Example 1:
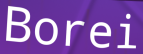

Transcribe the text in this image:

Borei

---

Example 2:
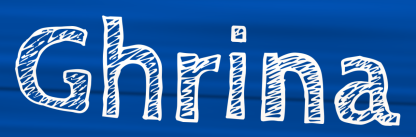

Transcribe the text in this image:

Ghrina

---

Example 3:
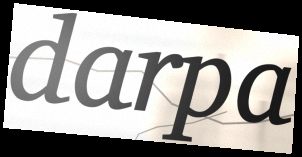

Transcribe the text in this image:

darpa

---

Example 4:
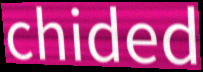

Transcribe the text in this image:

chided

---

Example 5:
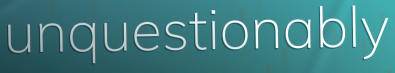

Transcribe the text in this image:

unquestionably